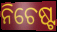
ନିଚେଷ୍ଟ